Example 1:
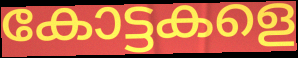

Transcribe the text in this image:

കോട്ടകളെ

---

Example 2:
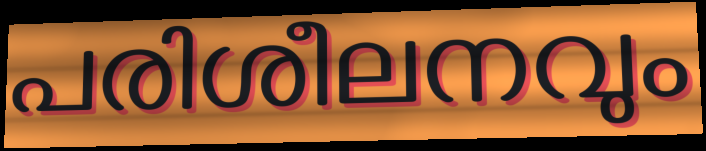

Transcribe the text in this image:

പരിശീലനവും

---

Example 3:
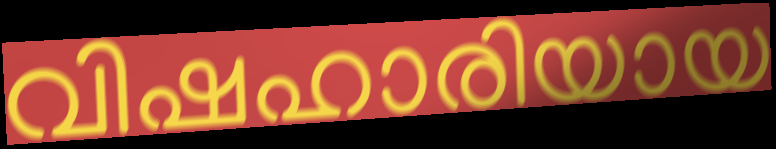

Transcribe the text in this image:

വിഷഹാരിയായ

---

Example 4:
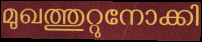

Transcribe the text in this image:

മുഖത്തുറ്റുനോക്കി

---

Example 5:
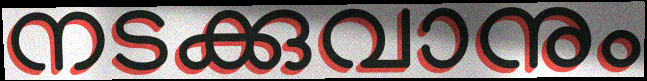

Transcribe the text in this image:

നടക്കുവാനും